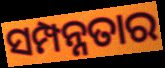
ସମ୍ପନ୍ନତାର